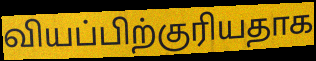
வியப்பிற்குரியதாக